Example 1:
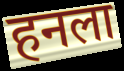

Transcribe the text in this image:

हनला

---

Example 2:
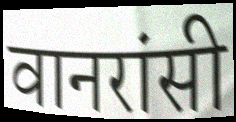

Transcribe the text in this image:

वानरांसी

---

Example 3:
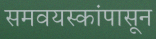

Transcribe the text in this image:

समवयस्कांपासून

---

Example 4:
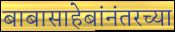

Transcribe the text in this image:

बाबासाहेबांनंतरच्या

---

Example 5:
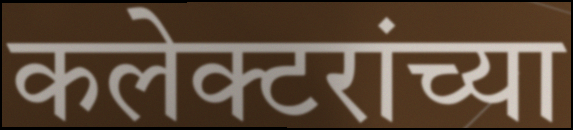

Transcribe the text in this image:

कलेक्टरांच्या